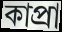
কাপ্রা